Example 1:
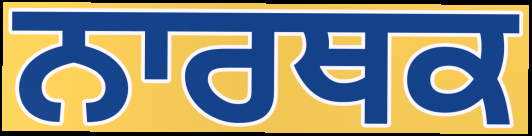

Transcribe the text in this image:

ਨਾਰਥਕ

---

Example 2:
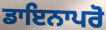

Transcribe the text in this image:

ਡਾਇਨਾਪਰੋ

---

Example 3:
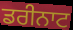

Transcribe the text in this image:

ਡਰੀਨਾਟ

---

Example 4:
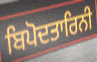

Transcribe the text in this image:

ਬਿਪੋਦਤਾਰਿਨੀ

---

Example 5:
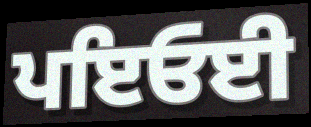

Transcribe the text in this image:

ਪਇਓਈ